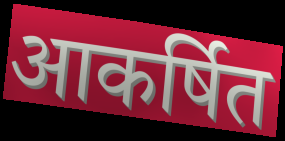
आकर्षित